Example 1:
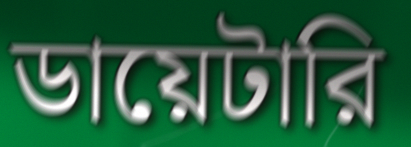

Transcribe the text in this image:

ডায়েটারি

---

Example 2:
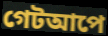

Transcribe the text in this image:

গেটআপে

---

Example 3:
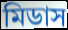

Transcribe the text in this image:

মিডাস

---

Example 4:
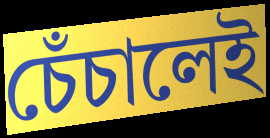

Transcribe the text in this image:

চেঁচালেই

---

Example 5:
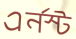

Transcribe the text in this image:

এর্নস্ট